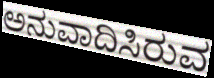
ಅನುವಾದಿಸಿರುವ